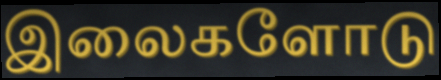
இலைகளோடு